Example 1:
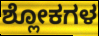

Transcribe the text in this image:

ಶ್ಲೋಕಗಳ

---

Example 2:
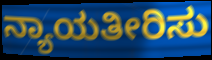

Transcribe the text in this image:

ನ್ಯಾಯತೀರಿಸು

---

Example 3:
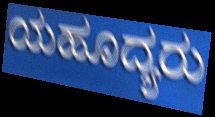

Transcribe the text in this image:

ಯಹೂದ್ಯರು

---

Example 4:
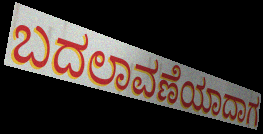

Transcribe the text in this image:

ಬದಲಾವಣೆಯಾದಾಗ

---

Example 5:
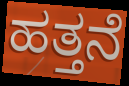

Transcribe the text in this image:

ಹತ್ತನೆ